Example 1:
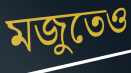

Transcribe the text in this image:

মজুতেও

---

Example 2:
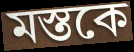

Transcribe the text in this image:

মস্তকে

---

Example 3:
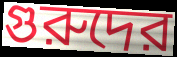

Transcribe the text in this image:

গুরুদের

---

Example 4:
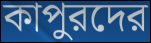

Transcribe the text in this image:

কাপুরদের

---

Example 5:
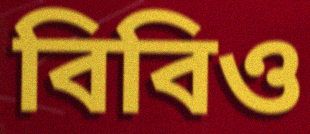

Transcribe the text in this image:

বিবিও